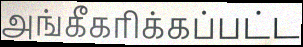
அங்கீகரிக்கப்பட்ட